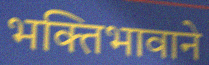
भक्तिभावाने